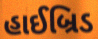
હાઈબ્રિડ